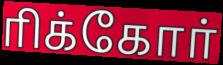
ரிக்கோர்